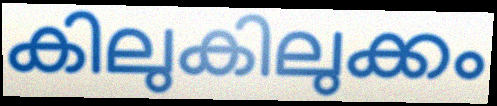
കിലുകിലുക്കം